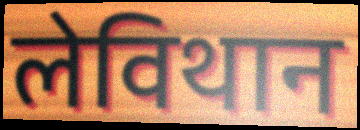
लेविथान